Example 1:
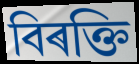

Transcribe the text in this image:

বিৰক্তি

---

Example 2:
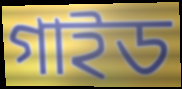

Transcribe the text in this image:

গাইড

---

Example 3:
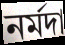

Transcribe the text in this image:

নৰ্মদা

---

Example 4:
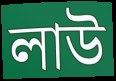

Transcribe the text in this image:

লাউ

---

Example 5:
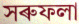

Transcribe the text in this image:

সৰুফলা